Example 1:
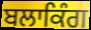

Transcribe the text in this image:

ਬਲਾਕਿੰਗ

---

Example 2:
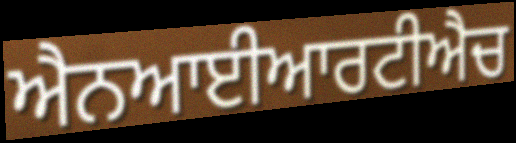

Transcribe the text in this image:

ਐਨਆਈਆਰਟੀਐਚ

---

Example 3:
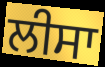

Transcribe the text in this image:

ਲੀਸਾ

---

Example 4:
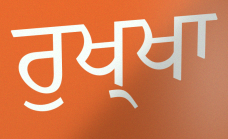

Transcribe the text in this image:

ਰੁਖ੍ਖਾ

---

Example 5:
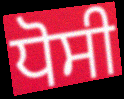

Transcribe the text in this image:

ਧੋਸੀ